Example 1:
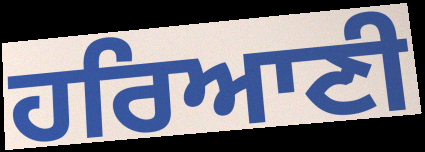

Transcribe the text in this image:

ਹਰਿਆਣੀ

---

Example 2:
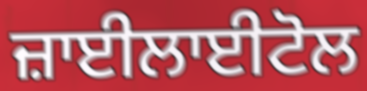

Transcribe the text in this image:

ਜ਼ਾਈਲਾਈਟੋਲ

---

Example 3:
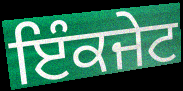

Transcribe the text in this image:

ਇੰਕਜੇਟ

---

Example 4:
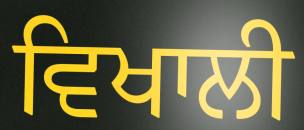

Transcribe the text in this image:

ਵਿਖਾਲੀ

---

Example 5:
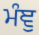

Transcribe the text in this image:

ਮੰਞੁ